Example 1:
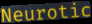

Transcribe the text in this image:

Neurotic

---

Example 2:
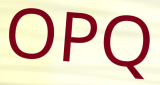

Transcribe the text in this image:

OPQ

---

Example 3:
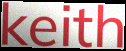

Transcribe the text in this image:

keith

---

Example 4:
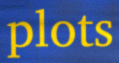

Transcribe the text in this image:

plots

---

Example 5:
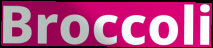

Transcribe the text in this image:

Broccoli